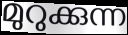
മുറുക്കുന്ന